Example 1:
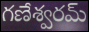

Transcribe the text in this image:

గణేశ్వరమ్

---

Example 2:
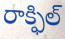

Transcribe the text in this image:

రాక్ఫిల్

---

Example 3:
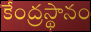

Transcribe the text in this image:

కేంద్రస్థానం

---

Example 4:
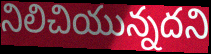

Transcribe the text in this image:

నిలిచియున్నదని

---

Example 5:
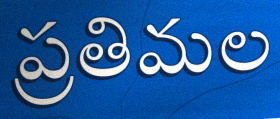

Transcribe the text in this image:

ప్రతిమల